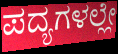
ಪದ್ಯಗಳಲ್ಲೇ